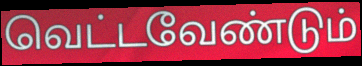
வெட்டவேண்டும்